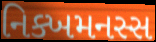
નિક્ખમનસ્સ